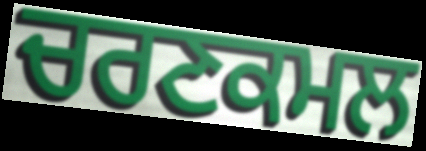
ਚਰਣਕਮਲ